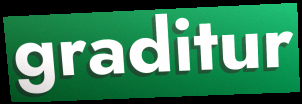
graditur